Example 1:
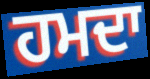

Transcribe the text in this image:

ਹਮਦਾ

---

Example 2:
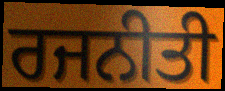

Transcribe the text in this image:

ਰਜਨੀਤੀ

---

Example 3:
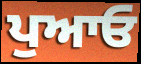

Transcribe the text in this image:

ਪੁਆਓ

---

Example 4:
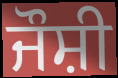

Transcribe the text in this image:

ਜੌਸ਼ੀ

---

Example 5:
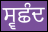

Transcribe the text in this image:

ਸ੍ਵਛੰਦ